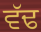
ਵੱਢ